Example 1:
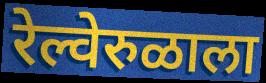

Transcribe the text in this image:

रेल्वेरुळाला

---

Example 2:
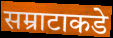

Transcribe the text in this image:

सम्राटाकडे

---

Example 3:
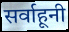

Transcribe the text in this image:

सर्वाहूनी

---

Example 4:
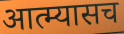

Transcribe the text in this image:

आत्म्यासच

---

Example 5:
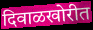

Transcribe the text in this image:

दिवाळखोरीत